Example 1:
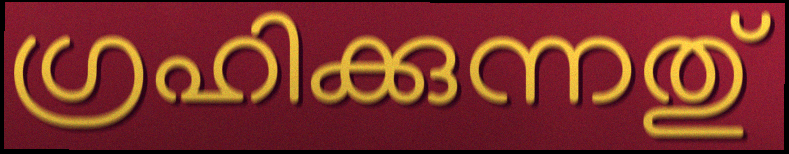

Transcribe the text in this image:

ഗ്രഹിക്കുന്നതു്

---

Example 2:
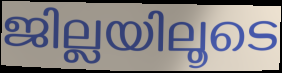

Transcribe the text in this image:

ജില്ലയിലൂടെ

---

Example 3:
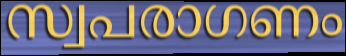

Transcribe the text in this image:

സ്വപരാഗണം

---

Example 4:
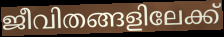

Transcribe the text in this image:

ജീവിതങ്ങളിലേക്ക്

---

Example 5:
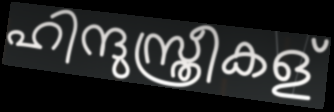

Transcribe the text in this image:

ഹിന്ദുസ്ത്രീകള്